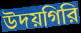
উদয়গিরি